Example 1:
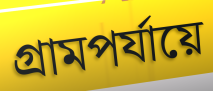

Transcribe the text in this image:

গ্রামপর্যায়ে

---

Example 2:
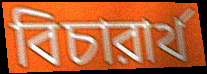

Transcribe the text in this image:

বিচারার্থ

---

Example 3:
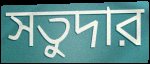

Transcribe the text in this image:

সতুদার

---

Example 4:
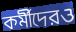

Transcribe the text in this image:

কর্মীদেরও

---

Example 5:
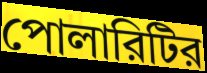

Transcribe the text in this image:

পোলারিটির